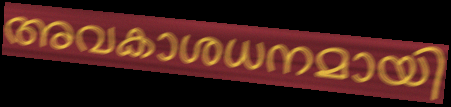
അവകാശധനമായി